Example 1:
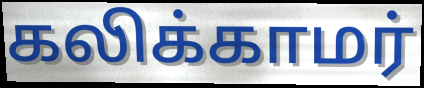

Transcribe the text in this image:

கலிக்காமர்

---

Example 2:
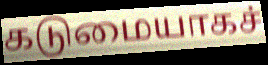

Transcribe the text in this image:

கடுமையாகச்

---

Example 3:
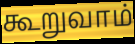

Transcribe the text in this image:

கூறுவாம்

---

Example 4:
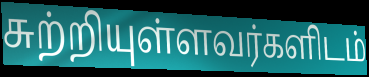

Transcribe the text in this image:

சுற்றியுள்ளவர்களிடம்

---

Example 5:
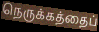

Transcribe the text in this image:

நெருக்கத்தைப்